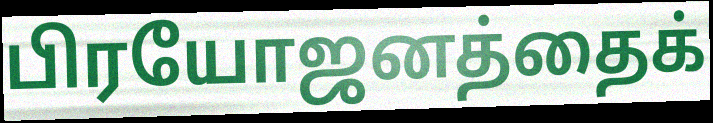
பிரயோஜனத்தைக்